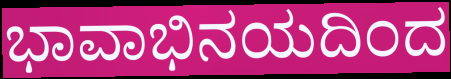
ಭಾವಾಭಿನಯದಿಂದ